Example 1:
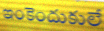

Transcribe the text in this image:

ఇంకెందుకులే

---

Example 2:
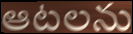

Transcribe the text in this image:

ఆటలను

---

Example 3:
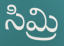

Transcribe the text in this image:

సిమ్రి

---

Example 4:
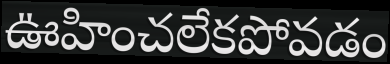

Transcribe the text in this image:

ఊహించలేకపోవడం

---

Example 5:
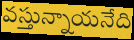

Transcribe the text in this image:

వస్తున్నాయనేది